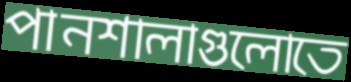
পানশালাগুলোতে